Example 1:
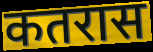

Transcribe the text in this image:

कतरास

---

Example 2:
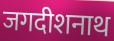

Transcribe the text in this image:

जगदीशनाथ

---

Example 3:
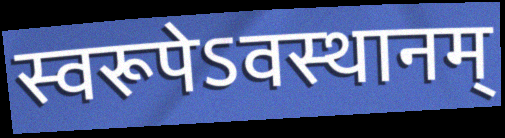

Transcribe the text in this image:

स्वरूपेऽवस्थानम्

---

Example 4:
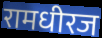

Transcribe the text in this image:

रामधीरज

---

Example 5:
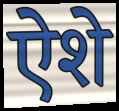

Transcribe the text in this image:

ऐशे